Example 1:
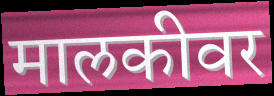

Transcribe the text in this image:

मालकीवर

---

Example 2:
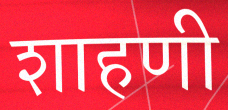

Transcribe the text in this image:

शाहणी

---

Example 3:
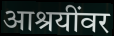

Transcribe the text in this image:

आश्रयींवर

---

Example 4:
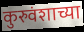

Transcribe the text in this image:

कुरुवंशाच्या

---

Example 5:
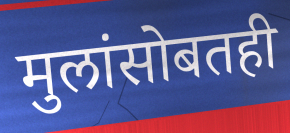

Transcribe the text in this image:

मुलांसोबतही